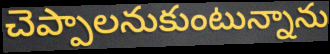
చెప్పాలనుకుంటున్నాను